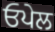
ਓਪੇਲ